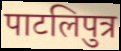
पाटलिपुत्र